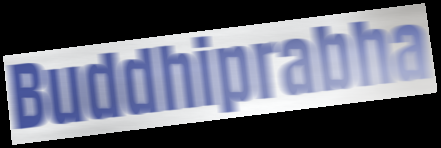
Buddhiprabha